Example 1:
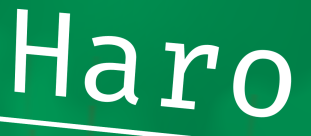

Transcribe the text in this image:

Haro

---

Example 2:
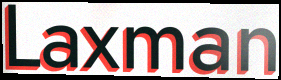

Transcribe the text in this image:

Laxman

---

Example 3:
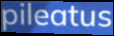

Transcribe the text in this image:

pileatus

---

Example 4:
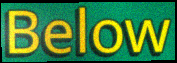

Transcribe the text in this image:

Below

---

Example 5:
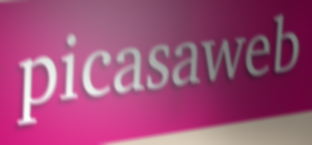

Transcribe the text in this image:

picasaweb